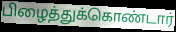
பிழைத்துக்கொண்டார்